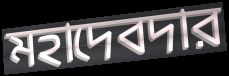
মহাদেবদার